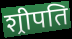
श्रीपति